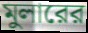
মুলারের